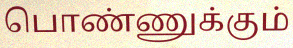
பொண்ணுக்கும்